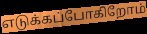
எடுக்கப்போகிறோம்